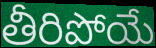
తీరిపోయే